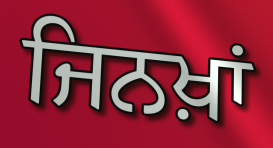
ਜਿਨਖ਼ਾਂ